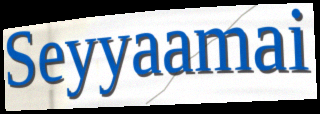
Seyyaamai